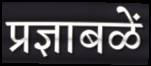
प्रज्ञाबळें